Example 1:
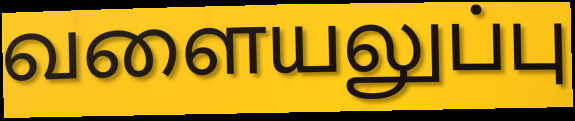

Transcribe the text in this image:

வளையலுப்பு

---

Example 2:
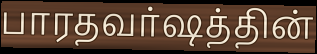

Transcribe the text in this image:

பாரதவர்ஷத்தின்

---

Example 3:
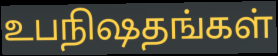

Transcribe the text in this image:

உபநிஷதங்கள்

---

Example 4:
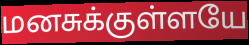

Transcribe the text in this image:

மனசுக்குள்ளயே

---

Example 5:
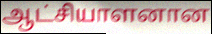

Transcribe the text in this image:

ஆட்சியாளனான